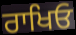
ਰਾਖਿਓ